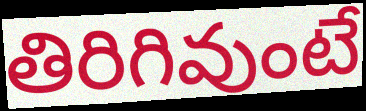
తిరిగివుంటే